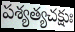
పశ్యత్యచక్షుః